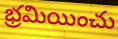
భ్రమియించు